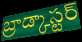
బ్రాడ్కాస్టర్